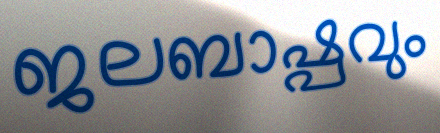
ജലബാഷ്പവും